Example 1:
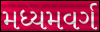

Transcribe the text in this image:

મધ્યમવર્ગ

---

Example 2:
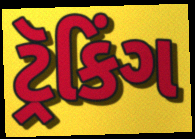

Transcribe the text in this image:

ટ્રૅકિંગ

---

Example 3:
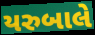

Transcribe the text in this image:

યરુબાલે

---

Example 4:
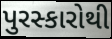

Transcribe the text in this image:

પુરસ્કારોથી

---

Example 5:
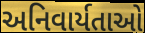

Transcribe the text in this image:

અનિવાર્યતાઓ